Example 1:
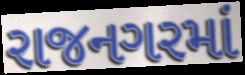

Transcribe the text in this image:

રાજનગરમાં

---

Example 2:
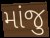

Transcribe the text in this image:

માંજુ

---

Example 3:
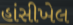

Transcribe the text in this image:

હાંસીખેલ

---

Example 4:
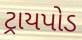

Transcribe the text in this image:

ટ્રાયપોડ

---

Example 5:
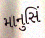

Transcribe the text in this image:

માનુસિં